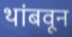
थांबवून